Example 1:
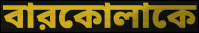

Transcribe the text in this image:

বারকোলাকে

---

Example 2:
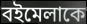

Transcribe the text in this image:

বইমেলাকে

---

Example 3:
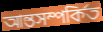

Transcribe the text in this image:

আন্তসম্পর্কিত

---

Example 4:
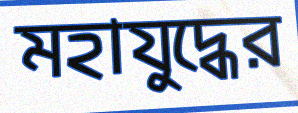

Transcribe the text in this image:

মহাযুদ্ধের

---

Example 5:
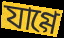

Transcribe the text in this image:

যাগ্গে